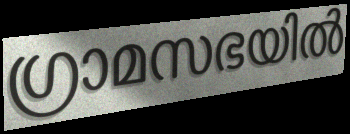
ഗ്രാമസഭയിൽ